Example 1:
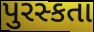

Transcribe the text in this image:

પુરસ્કતા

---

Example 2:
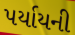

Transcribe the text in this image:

પર્યાયની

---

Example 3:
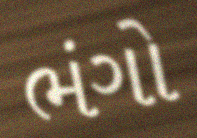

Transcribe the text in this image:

ભંગો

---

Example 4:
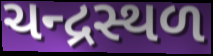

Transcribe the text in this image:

ચન્દ્રસ્થળ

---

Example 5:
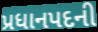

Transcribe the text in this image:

પ્રધાનપદની